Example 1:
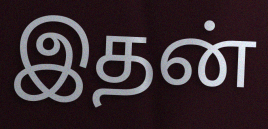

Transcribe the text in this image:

இதன்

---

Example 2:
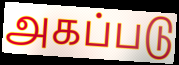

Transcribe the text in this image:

அகப்படு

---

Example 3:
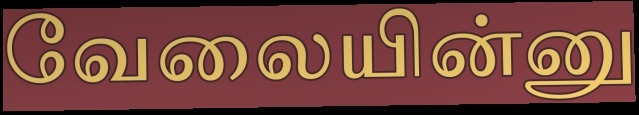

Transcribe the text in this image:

வேலையின்னு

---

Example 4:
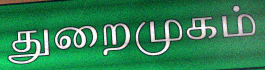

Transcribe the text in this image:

துறைமுகம்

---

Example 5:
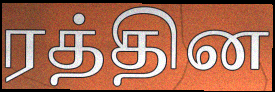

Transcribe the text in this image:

ரத்தின